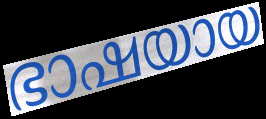
ഭാഷയായ